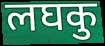
लघकु